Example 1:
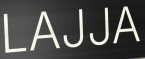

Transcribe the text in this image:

LAJJA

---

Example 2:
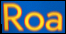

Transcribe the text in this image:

Roa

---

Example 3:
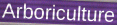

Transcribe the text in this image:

Arboriculture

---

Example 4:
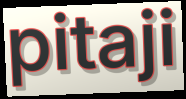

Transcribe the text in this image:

pitaji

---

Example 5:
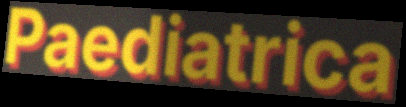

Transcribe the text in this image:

Paediatrica